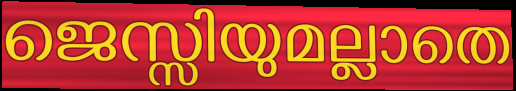
ജെസ്സിയുമല്ലാതെ